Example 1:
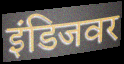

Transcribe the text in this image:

इंडिजवर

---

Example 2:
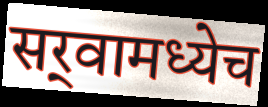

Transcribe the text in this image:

सर्वामध्येच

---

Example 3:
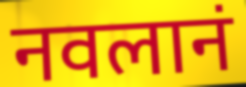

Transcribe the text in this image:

नवलानं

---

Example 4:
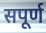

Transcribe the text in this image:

सपूर्ण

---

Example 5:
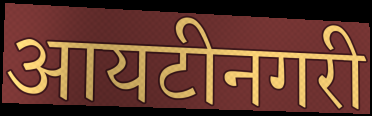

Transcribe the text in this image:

आयटीनगरी